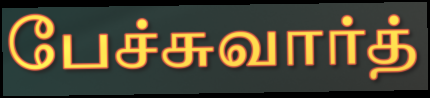
பேச்சுவார்த்